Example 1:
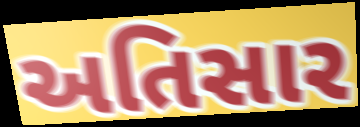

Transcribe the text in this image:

અતિસાર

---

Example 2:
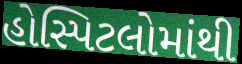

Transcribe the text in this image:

હોસ્પિટલોમાંથી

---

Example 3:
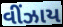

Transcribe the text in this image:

વીંઝાય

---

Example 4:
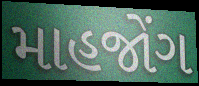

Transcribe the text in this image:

માહજોંગ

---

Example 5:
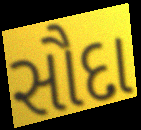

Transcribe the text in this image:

સૌદા